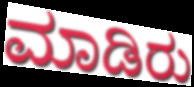
ಮಾಡಿರು